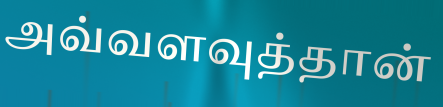
அவ்வளவுத்தான்